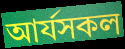
আৰ্যসকল